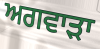
ਅਗਵਾੜਾ